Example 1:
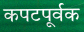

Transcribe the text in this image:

कपटपूर्वक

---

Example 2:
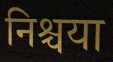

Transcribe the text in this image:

निश्चया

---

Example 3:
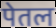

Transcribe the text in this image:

पेतल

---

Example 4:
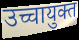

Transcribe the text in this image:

उच्‍चायुक्‍त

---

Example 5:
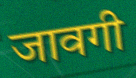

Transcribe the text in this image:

जावगी